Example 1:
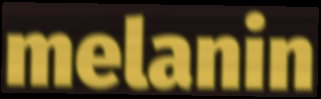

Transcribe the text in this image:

melanin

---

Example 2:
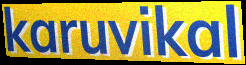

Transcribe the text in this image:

karuvikal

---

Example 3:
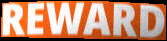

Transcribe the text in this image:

REWARD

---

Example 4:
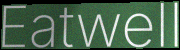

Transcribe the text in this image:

Eatwell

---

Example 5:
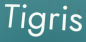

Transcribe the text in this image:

Tigris